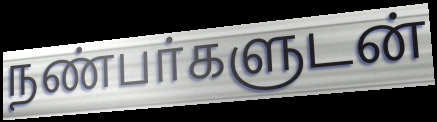
நண்பர்களுடன்